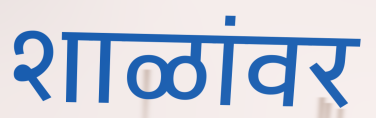
शाळांवर